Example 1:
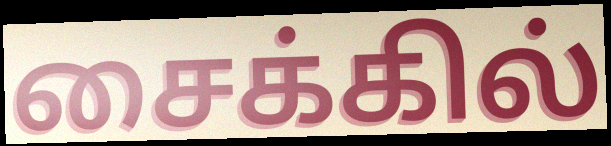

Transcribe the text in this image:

சைக்கில்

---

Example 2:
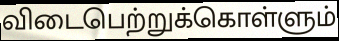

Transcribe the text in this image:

விடைபெற்றுக்கொள்ளும்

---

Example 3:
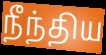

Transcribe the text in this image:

நீந்திய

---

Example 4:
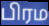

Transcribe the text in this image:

பிரம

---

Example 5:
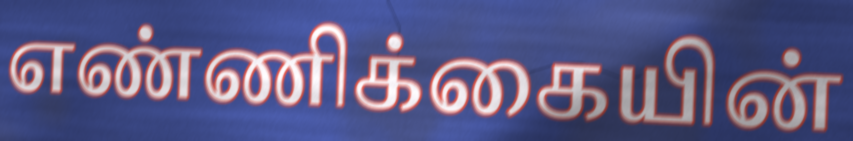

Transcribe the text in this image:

எண்ணிக்கையின்